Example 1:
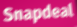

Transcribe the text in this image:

Snapdeal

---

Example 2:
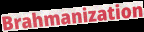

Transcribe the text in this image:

Brahmanization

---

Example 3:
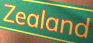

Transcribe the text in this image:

Zealand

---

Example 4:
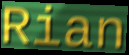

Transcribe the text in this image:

Rian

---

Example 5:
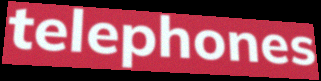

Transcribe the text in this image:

telephones